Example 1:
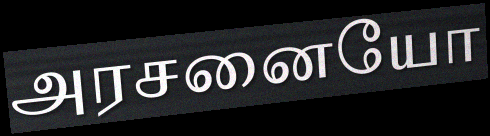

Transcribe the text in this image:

அரசனையோ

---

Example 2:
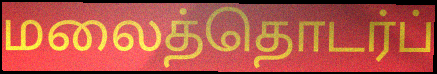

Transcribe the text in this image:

மலைத்தொடர்ப்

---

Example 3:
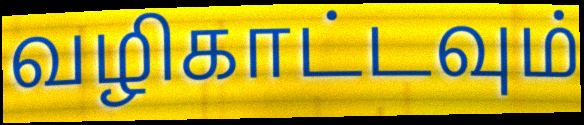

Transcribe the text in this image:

வழிகாட்டவும்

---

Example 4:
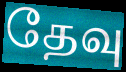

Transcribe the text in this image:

தேவு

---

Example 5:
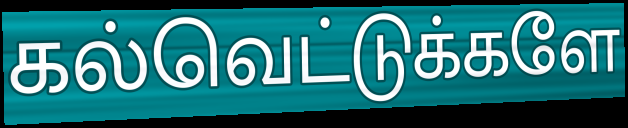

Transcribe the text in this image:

கல்வெட்டுக்களே